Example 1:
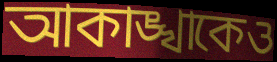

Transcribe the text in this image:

আকাঙ্খাকেও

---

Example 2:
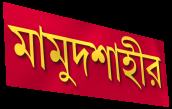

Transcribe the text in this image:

মামুদশাহীর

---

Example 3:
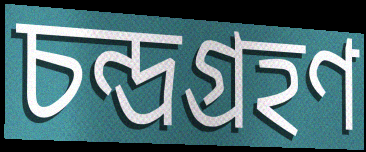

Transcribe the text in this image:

চন্দ্রগ্রহণ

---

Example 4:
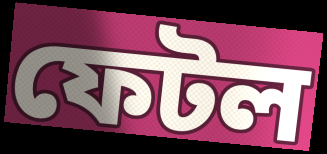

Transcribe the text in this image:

ফেটল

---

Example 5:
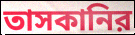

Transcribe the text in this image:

তাসকানির